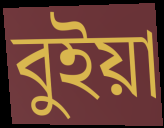
বুইয়া